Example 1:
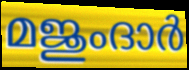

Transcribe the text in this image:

മജുംദാർ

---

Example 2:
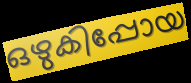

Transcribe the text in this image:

ഒഴുകിപ്പോയ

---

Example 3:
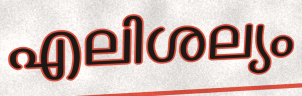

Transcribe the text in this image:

എലിശല്യം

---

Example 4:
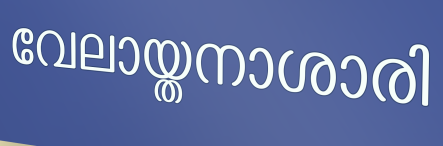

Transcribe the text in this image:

വേലായ്തനാശാരി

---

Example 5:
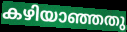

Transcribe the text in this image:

കഴിയാഞ്ഞതു